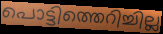
പൊട്ടിത്തെറിച്ചില്ല